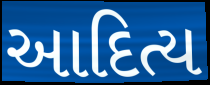
આદિત્ય